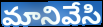
మానివేసి